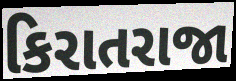
કિરાતરાજા